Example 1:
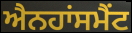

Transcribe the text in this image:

ਐਨਹਾਂਸਮੈਂਟ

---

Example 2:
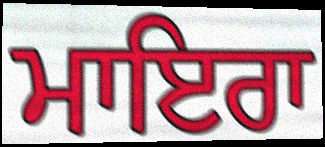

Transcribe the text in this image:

ਮਾਇਰਾ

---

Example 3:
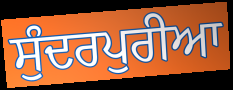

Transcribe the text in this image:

ਸੁੰਦਰਪੁਰੀਆ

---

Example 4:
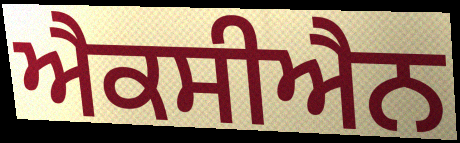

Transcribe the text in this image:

ਐਕਸੀਐਨ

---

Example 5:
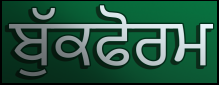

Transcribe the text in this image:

ਬੁੱਕਫੋਰਮ